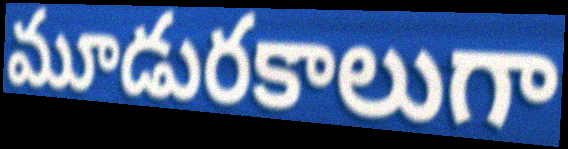
మూడురకాలుగా